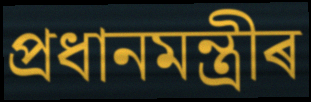
প্ৰধানমন্ত্ৰীৰ